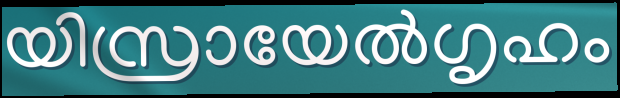
യിസ്രായേൽഗൃഹം